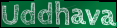
Uddhava